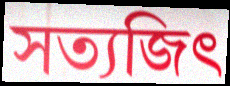
সত্যজিৎ